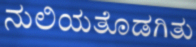
ನುಲಿಯತೊಡಗಿತು